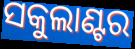
ସକୁଲାଣ୍ଟର